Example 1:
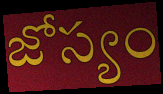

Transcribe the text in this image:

జోస్యం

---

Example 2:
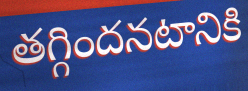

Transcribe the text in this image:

తగ్గిందనటానికి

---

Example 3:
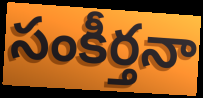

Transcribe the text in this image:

సంకీర్తనా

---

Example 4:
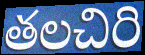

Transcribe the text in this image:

తలచిరి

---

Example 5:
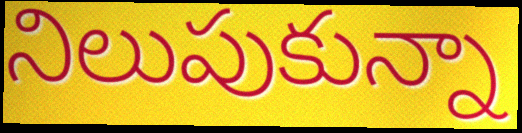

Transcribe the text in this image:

నిలుపుకున్నా